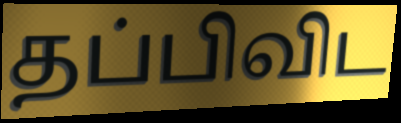
தப்பிவிட